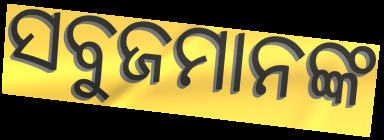
ସବୁଜମାନଙ୍କ